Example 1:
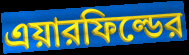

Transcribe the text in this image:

এয়ারফিল্ডের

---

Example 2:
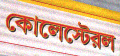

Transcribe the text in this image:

কোলেস্টেরল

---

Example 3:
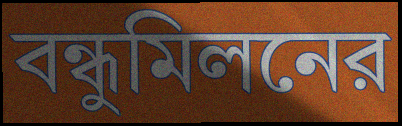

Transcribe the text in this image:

বন্ধুমিলনের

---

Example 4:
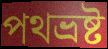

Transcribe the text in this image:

পথভ্রষ্ট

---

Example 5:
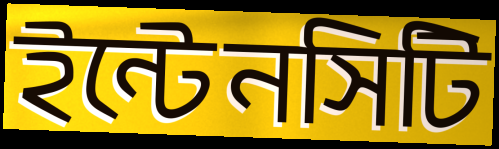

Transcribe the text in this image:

ইন্টেনসিটি